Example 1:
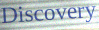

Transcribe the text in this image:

Discovery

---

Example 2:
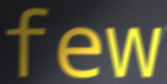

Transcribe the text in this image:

few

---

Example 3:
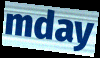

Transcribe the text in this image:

mday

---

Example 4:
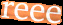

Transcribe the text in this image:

reee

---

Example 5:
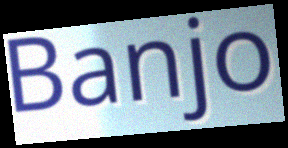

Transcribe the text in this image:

Banjo